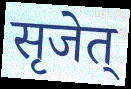
सृजेत्